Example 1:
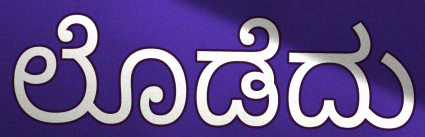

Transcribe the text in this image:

ಲೊಡೆದು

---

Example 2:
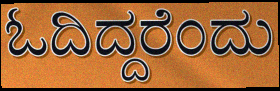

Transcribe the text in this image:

ಓದಿದ್ದರೆಂದು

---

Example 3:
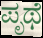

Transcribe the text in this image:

ಪೃಥೆ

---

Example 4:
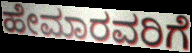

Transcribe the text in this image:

ಹೇಮಾರವರಿಗೆ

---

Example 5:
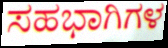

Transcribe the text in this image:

ಸಹಭಾಗಿಗಳ